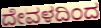
ದೇವಳದಿಂದ